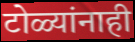
टोळ्यांनाही